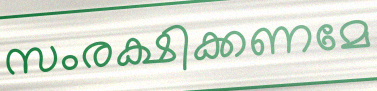
സംരക്ഷിക്കണമേ